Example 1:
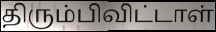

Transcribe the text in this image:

திரும்பிவிட்டாள்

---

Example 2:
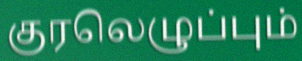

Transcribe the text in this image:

குரலெழுப்பும்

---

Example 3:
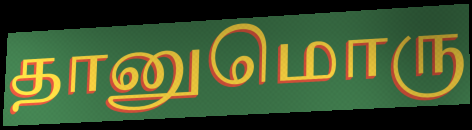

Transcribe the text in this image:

தானுமொரு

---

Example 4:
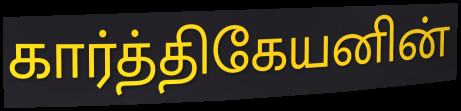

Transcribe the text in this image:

கார்த்திகேயனின்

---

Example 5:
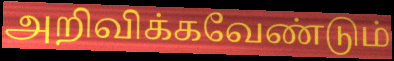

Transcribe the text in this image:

அறிவிக்கவேண்டும்